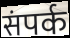
संपर्क